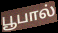
பூபால்